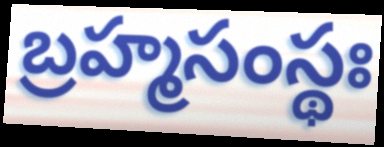
బ్రహ్మసంస్థః